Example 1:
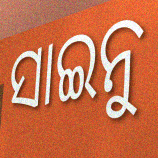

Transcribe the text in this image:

ସାଇନୁ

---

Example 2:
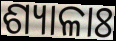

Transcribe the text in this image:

ଶ୍ୟାଳାଃ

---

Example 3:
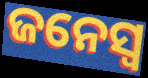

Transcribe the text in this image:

ଜନେସ୍ୱ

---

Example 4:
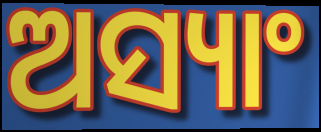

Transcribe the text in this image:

ଅସ୍ୟାଂ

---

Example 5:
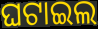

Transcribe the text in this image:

ଘଟାଇଲ